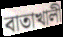
বাতাখালী